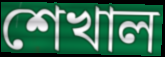
শেখাল